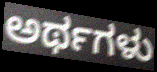
ಅರ್ಥಗಳು